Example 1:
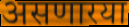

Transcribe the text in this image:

असणारया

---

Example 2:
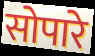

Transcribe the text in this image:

सोपारे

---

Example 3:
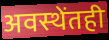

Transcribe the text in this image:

अवस्थेंतही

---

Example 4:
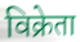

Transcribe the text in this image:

विक्रेता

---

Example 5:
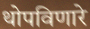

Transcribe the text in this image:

थोपविणारे